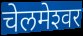
चेलमेश्‍वर